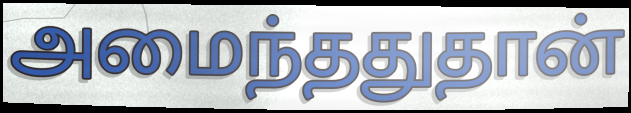
அமைந்ததுதான்